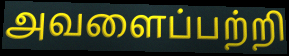
அவளைப்பற்றி